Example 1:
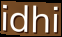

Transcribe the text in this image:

idhi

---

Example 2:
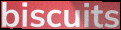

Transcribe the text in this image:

biscuits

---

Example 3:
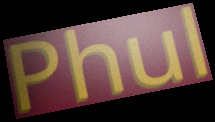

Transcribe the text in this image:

Phul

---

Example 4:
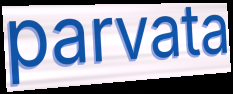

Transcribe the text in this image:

parvata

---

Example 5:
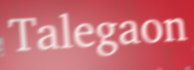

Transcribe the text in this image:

Talegaon